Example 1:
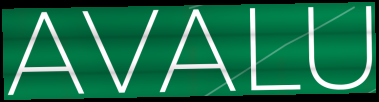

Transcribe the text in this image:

AVALU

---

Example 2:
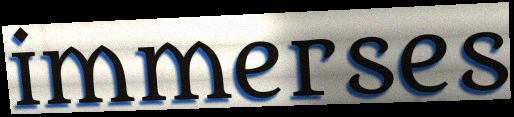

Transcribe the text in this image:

immerses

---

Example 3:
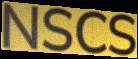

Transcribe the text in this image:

NSCS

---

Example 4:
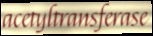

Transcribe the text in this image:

acetyltransferase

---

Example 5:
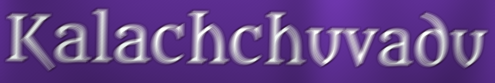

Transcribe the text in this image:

Kalachchuvadu